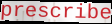
prescribe